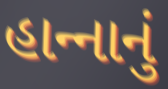
હાન્‍નાનું